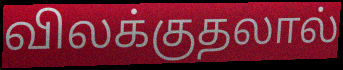
விலக்குதலால்